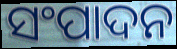
ସଂପାଦନ